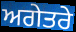
ਅਗੇਤਰੇ